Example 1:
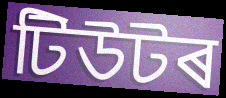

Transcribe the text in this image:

টিউটৰ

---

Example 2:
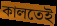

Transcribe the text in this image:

কালতেই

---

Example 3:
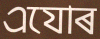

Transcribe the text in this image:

এযোৰ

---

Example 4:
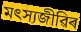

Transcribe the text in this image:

মৎস্যজীৱিৰ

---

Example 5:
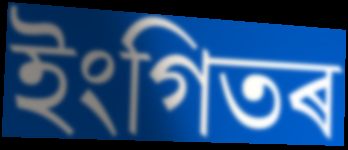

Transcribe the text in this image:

ইংগিতৰ